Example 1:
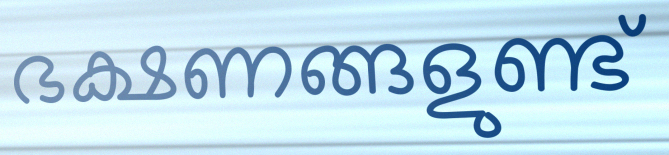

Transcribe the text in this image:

ഭക്ഷണങ്ങളുണ്ട്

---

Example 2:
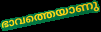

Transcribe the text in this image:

ഭാവത്തെയാണു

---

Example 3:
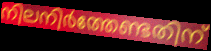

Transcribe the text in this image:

നിലനിർത്തേണ്ടതിന്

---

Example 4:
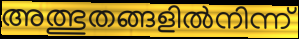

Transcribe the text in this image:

അത്ഭുതങ്ങളിൽനിന്ന്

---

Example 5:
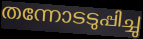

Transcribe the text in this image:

തന്നോടടുപ്പിച്ചു